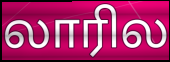
லாரில